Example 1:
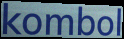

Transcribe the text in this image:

kombol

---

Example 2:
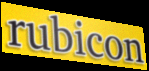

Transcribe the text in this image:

rubicon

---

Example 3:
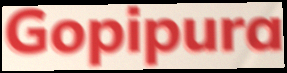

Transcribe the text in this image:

Gopipura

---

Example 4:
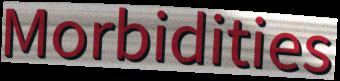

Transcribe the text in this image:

Morbidities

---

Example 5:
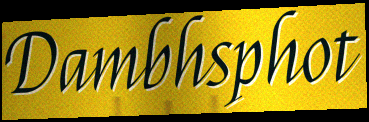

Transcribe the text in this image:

Dambhsphot